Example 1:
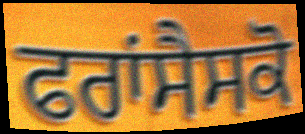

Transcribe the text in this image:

ਫਰਾਂਸੈਸਕੋ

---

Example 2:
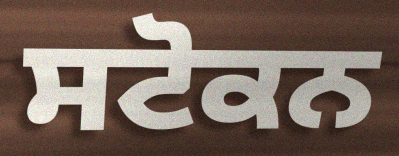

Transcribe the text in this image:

ਸਟੋਕਨ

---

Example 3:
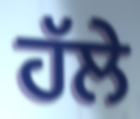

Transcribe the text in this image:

ਹੱਲੇ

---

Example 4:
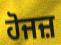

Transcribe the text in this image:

ਹੋਜਜ਼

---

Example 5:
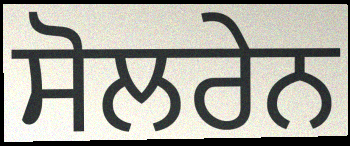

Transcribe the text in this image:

ਸੋਲਰੇਨ